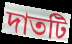
দাতটি